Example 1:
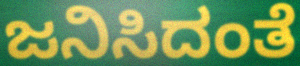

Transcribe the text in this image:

ಜನಿಸಿದಂತೆ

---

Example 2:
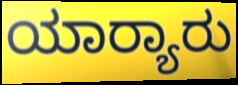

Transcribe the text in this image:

ಯಾರ‍್ಯಾರು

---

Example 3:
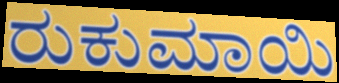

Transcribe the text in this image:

ರುಕುಮಾಯಿ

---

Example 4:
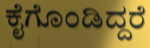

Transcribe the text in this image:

ಕೈಗೊಂಡಿದ್ದರೆ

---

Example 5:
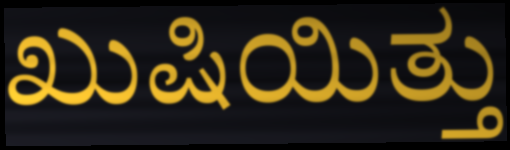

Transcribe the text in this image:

ಖುಷಿಯಿತ್ತು